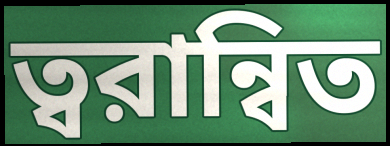
ত্বরান্বিত